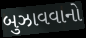
બુઝાવવાનો